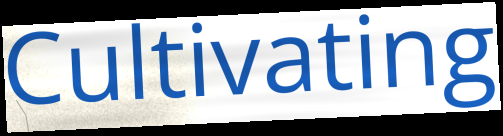
Cultivating